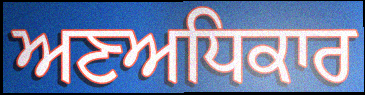
ਅਣਅਧਿਕਾਰ